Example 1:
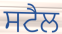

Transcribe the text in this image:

ਸਟੈਲ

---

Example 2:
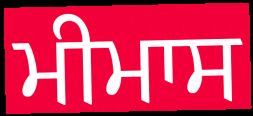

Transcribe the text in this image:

ਮੀਮਾਸ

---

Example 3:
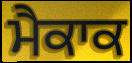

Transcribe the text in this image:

ਮੈਕਾਕ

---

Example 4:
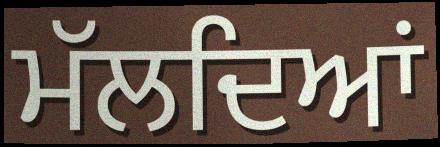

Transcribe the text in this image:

ਮੱਲਦਿਆਂ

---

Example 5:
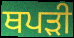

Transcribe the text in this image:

ਥਪੜੀ